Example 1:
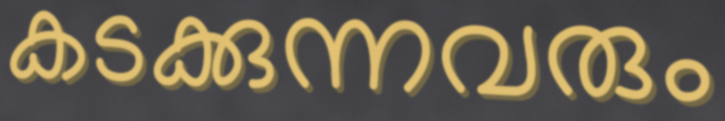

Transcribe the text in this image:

കടക്കുന്നവരും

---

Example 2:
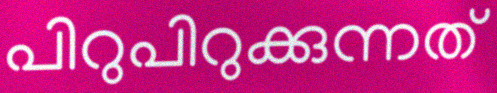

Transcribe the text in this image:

പിറുപിറുക്കുന്നത്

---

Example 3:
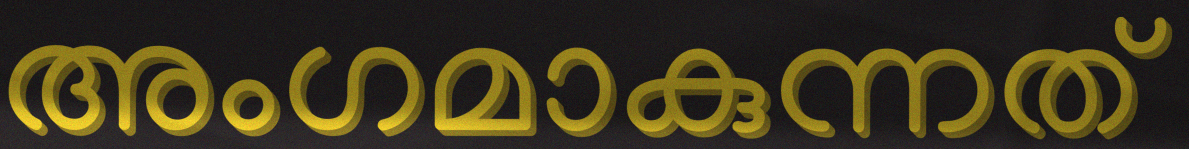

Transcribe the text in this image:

അംഗമാകുന്നത്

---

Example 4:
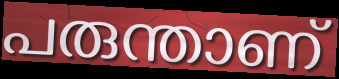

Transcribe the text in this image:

പരുന്താണ്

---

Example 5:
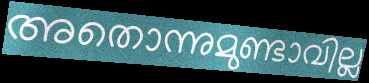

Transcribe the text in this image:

അതൊന്നുമുണ്ടാവില്ല